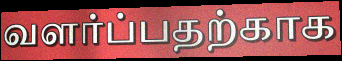
வளர்ப்பதற்காக